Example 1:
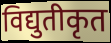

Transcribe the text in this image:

विद्युतीकृत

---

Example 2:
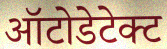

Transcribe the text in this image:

ऑटोडेटेक्ट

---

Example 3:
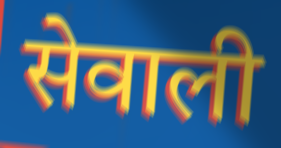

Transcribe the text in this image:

सेवाली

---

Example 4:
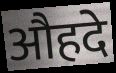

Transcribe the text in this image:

औहदे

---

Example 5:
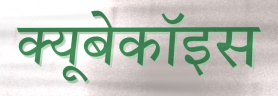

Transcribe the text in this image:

क्यूबेकॉइस